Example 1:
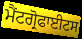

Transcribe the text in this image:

ਮੈਂਟਗ੍ਰੋਫਾਈਟਸ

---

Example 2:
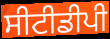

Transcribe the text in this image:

ਸੀਟੀਡੀਪੀ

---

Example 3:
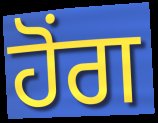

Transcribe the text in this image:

ਹੋੰਗ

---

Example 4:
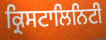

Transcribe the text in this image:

ਕ੍ਰਿਸਟਾਲਿਨਿਟੀ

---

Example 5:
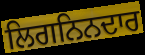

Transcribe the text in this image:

ਲਿਗਨਿਨਦਾਰ